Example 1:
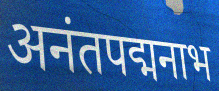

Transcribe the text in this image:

अनंतपद्मनाभ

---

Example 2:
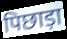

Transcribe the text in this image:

पिछाड़ा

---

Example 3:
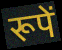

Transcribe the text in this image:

रूपें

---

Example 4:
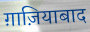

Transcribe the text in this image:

ग़ाज़ियाबाद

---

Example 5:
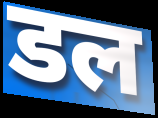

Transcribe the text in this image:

डल